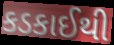
કડકાઈથી